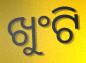
ଖୁଂଟି